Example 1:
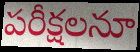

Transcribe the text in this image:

పరీక్షలనూ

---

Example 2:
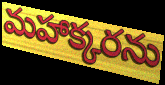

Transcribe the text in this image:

మహాక్కరను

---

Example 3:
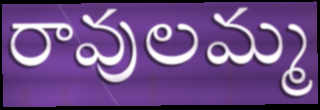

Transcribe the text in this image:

రావులమ్మ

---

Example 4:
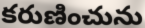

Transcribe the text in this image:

కరుణించును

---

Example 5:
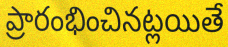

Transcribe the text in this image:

ప్రారంభించినట్లయితే